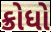
ક્રોધો